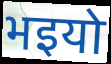
भइयो